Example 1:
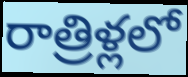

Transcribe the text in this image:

రాత్రిళ్లలో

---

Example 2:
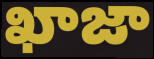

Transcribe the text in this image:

ఖాజా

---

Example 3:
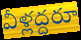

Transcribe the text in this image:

వీళ్లద్దరూ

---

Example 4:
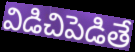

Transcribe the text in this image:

విడిచిపెడితే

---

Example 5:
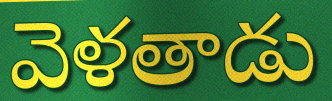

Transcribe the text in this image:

వెళతాడు